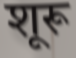
शूरू